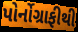
પોર્નોગ્રાફીથી